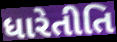
ધારેતીતિ